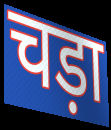
चड़ा